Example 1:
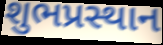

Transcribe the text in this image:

શુભપ્રસ્થાન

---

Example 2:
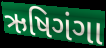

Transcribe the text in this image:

ઋષિગંગા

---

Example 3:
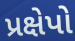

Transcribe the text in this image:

પ્રક્ષેપો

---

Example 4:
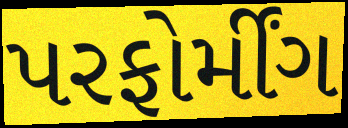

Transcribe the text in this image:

પરફોર્મીંગ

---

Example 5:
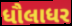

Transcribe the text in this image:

ધૌલાધર